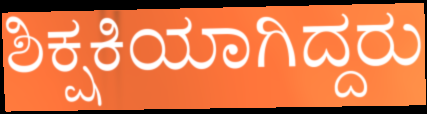
ಶಿಕ್ಷಕಿಯಾಗಿದ್ದರು